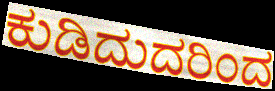
ಕುಡಿದುದರಿಂದ